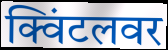
क्विंटलवर